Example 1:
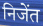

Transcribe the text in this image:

निजेंत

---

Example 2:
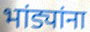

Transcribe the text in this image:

भांड्यांना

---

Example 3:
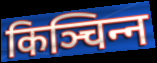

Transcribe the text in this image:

किञ्चिन्न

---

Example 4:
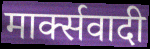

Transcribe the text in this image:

मार्क्सवादी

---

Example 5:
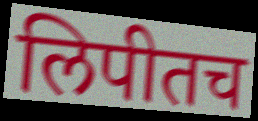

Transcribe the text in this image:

लिपीतच